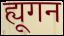
ह्यूगन